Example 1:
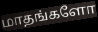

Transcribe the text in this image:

மாதங்களோ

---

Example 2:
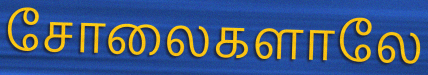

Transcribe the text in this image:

சோலைகளாலே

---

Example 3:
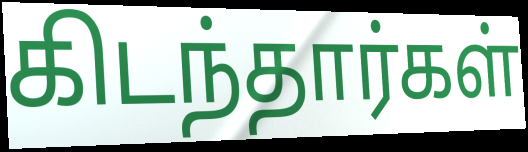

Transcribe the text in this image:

கிடந்தார்கள்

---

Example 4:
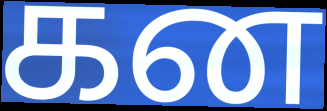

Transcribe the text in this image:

கன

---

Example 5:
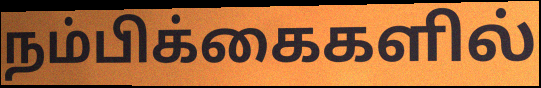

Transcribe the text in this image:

நம்பிக்கைகளில்